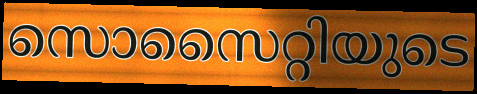
സൊസൈറ്റിയുടെ